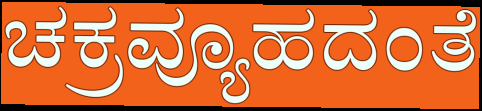
ಚಕ್ರವ್ಯೂಹದಂತೆ